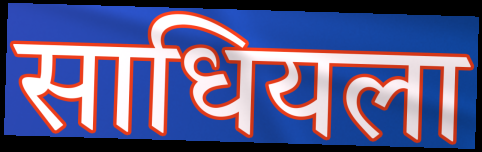
साधियला